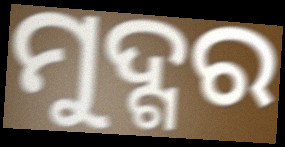
ମୁଦ୍ଗର